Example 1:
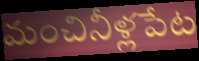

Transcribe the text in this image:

మంచినీళ్లపేట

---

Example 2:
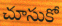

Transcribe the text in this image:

చూసుకో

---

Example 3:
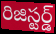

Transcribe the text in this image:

రిజిస్టర్డ్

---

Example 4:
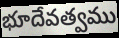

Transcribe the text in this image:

భూదేవత్వము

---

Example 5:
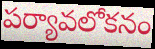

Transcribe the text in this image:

పర్యావలోకనం